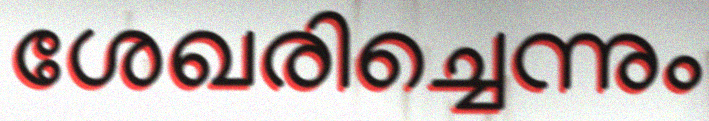
ശേഖരിച്ചെന്നും